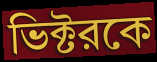
ভিক্টরকে